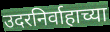
उदरनिर्वाहाच्या